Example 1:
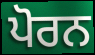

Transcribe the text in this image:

ਪੋਰਨ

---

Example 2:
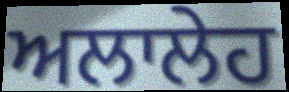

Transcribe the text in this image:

ਅਲਾਲੇਹ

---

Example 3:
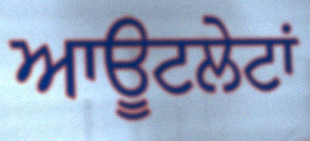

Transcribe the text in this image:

ਆਊਟਲੇਟਾਂ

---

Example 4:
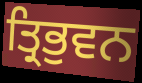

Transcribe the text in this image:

ਤ੍ਰਿਭੁਵਨ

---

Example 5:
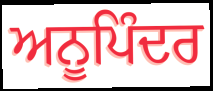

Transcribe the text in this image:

ਅਨੂਪਿੰਦਰ